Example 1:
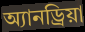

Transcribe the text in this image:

অ্যানড্রিয়া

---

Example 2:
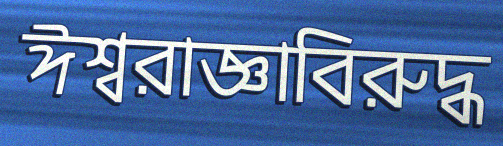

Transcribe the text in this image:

ঈশ্বরাজ্ঞাবিরুদ্ধ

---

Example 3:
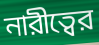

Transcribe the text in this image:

নারীত্বের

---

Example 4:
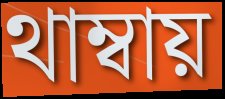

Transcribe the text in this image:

থাম্বায়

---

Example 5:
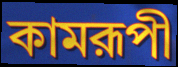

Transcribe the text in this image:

কামরূপী